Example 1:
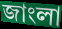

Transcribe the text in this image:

জাংলা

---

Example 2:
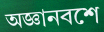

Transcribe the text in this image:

অজ্ঞানবশে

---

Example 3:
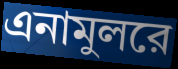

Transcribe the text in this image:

এনামুলরে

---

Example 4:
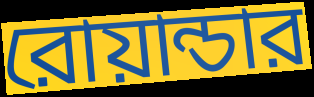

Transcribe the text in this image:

রোয়ান্ডার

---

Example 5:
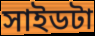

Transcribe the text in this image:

সাইডটা